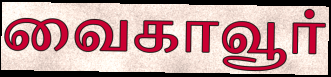
வைகாவூர்